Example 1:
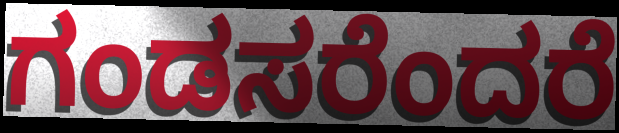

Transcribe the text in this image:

ಗಂಡಸರೆಂದರೆ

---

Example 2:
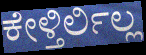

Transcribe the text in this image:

ಕೇಳ್ತಿರ್ಲಿಲ್ಲ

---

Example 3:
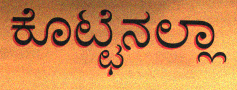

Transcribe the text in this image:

ಕೊಟ್ಟೆನಲ್ಲಾ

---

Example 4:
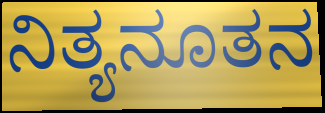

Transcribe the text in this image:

ನಿತ್ಯನೂತನ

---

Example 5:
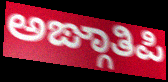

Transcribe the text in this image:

ಅಙ್ಗಾತಿಪಿ